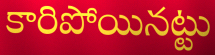
కారిపోయినట్టు